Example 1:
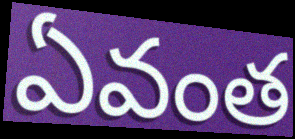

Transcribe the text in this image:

ఏవంత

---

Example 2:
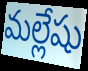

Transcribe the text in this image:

మల్లేషు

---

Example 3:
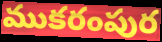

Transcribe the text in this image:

ముకరంపుర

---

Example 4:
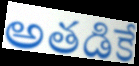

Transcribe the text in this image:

అతడికే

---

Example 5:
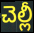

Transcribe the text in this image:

చెల్లీ